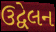
ઉદ્વેલન